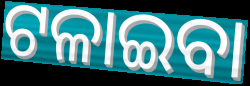
ଟଳାଇବା